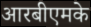
आरबीएमके